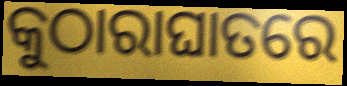
କୁଠାରାଘାତରେ